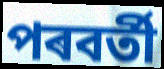
পৰবৰ্তী